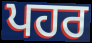
ਪਹਰ